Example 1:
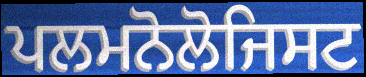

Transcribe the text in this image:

ਪਲਮਨੋਲੋਜਿਸਟ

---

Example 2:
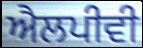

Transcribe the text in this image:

ਐਲਪੀਵੀ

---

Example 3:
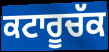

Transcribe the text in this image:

ਕਟਾਰੂਚੱਕ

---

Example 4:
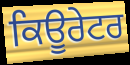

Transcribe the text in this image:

ਕਿਊਰੇਟਰ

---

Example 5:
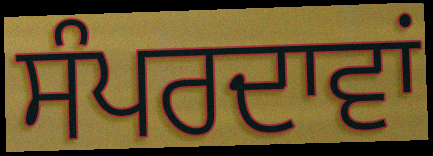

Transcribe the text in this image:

ਸੰਪਰਦਾਵਾਂ